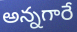
అన్నగారే